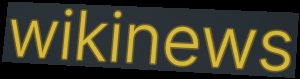
wikinews